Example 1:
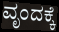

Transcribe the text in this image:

ವೃಂದಕ್ಕೆ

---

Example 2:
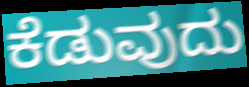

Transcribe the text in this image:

ಕೆಡುವುದು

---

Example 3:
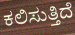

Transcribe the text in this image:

ಕಲಿಸುತ್ತಿದೆ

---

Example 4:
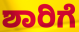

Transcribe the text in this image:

ಶಾರಿಗೆ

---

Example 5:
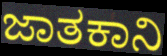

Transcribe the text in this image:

ಜಾತಕಾನಿ